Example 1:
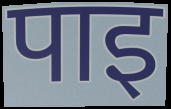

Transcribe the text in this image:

पाइ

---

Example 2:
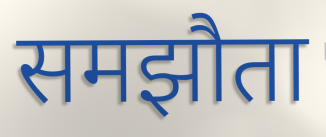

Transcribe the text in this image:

समझौता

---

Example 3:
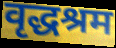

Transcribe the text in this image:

वृद्धश्रम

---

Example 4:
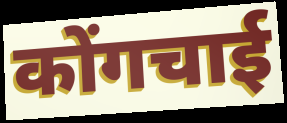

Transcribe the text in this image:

कोंगचाई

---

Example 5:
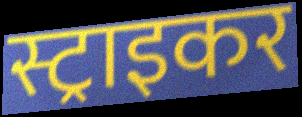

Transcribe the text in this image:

स्ट्राइकर